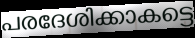
പരദേശിക്കാകട്ടെ